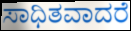
ಸಾಧಿತವಾದರೆ